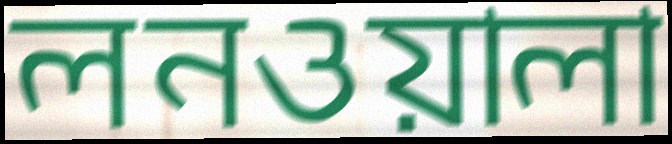
লনওয়ালা